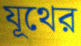
যূথের